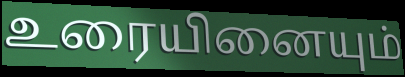
உரையினையும்